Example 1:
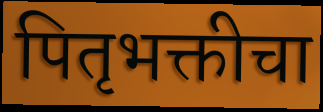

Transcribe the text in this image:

पितृभक्तीचा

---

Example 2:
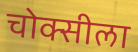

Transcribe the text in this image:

चोक्सीला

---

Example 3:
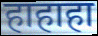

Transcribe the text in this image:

हाहाहा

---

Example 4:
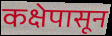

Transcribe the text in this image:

कक्षेपासून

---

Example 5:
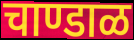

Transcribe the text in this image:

चाण्डाळ